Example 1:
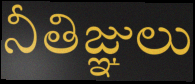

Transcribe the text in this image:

నీతిజ్ఞులు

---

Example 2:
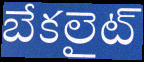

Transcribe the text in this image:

బేకలైట్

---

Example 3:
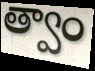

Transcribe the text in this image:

త్వాం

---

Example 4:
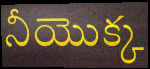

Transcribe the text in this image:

నీయొక్క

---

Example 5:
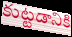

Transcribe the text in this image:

కుట్టడానికి